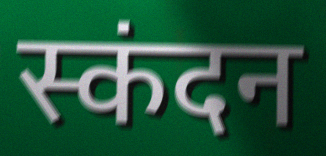
स्कंदन